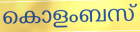
കൊളംബസ്